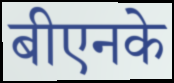
बीएनके